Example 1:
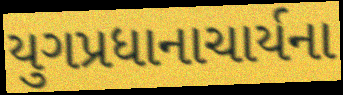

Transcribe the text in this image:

યુગપ્રધાનાચાર્યના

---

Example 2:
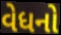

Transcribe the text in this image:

વેધનો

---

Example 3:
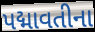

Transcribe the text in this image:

પદ્માવતીના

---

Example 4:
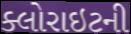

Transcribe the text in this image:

ક્લોરાઇટની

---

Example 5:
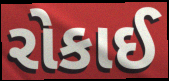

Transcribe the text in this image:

રોકાઈ